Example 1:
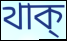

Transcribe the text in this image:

থাক্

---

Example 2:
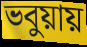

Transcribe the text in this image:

ভবুয়ায়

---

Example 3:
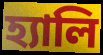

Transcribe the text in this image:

হ্যালি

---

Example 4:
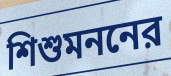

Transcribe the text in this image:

শিশুমননের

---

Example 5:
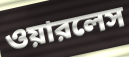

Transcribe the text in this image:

ওয়ারলেস